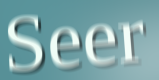
Seer